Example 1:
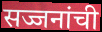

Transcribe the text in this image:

सज्जनांची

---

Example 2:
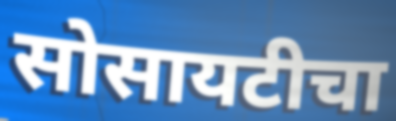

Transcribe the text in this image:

सोसायटीचा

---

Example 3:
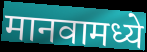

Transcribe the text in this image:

मानवामध्ये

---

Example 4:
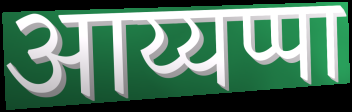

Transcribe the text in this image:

आय्यप्पा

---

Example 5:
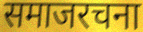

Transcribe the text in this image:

समाजरचना